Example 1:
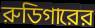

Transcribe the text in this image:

রুডিগারের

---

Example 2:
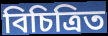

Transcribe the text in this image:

বিচিত্রিত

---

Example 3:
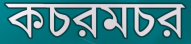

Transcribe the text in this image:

কচরমচর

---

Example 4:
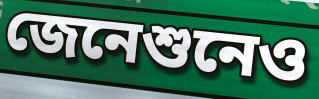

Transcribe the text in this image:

জেনেশুনেও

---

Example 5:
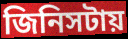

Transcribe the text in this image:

জিনিসটায়